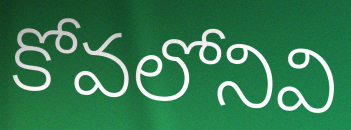
కోవలోనివి